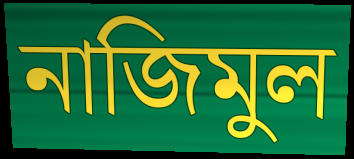
নাজিমুল